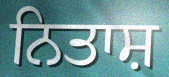
ਨਿਤਾਸ਼